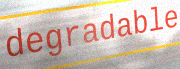
degradable